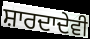
ਸ਼ਾਰਦਾਦੇਵੀ